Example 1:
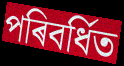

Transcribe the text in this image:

পৰিবৰ্ধিত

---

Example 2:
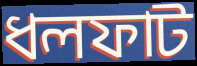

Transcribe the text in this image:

ধলফাট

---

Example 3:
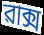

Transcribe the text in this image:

ৱাক্স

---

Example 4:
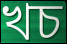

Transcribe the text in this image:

খচ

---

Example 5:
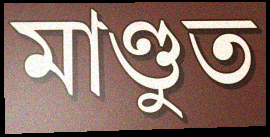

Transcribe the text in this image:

মাণ্ডুত